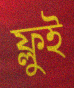
ফ্লুই